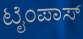
ಟೈಂಪಾಸ್